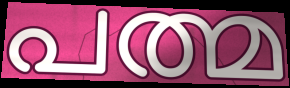
പത്മ